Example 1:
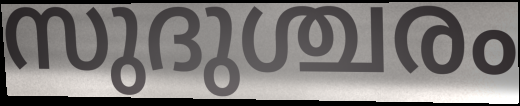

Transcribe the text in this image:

സുദുശ്ചരം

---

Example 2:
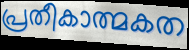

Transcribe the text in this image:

പ്രതീകാത്മകത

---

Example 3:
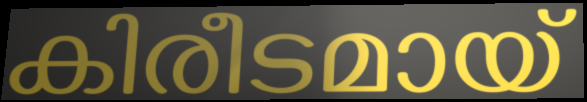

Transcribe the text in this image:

കിരീടമായ്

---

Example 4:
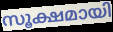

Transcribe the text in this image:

സൂക്ഷമായി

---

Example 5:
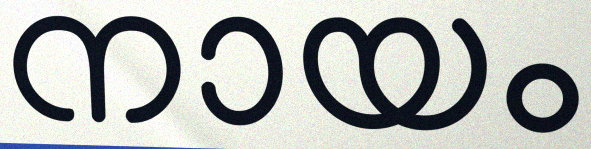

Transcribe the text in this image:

നായം